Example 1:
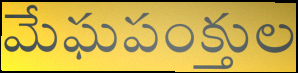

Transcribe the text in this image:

మేఘపంక్తుల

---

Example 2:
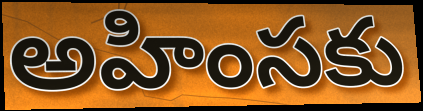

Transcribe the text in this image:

అహింసకు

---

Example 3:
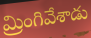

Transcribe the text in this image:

మ్రింగివేశాడు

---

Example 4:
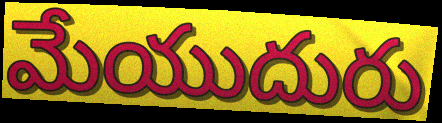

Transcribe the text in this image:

మేయుదురు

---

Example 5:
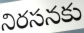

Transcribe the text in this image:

నిరసనకు